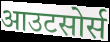
आउटसोर्स